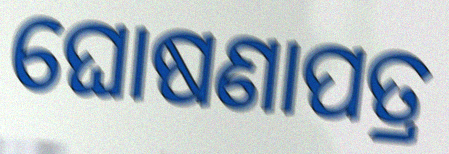
ଘୋଷଣାପତ୍ର